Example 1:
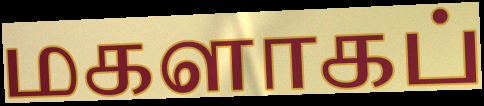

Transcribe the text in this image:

மகளாகப்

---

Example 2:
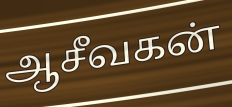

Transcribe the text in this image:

ஆசீவகன்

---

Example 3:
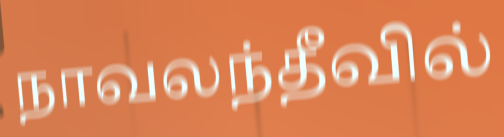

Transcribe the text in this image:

நாவலந்தீவில்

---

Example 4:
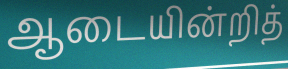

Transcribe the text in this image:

ஆடையின்றித்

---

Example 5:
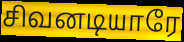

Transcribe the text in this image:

சிவனடியாரே